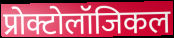
प्रोक्टोलॉजिकल